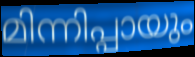
മിന്നിപ്പായും